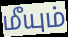
மீயும்